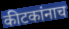
कीटकांनाच